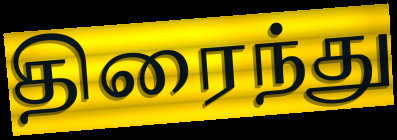
திரைந்து